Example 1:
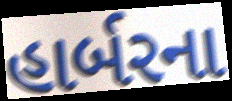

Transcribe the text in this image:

હાર્બરના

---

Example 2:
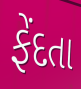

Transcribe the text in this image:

ફેંદતા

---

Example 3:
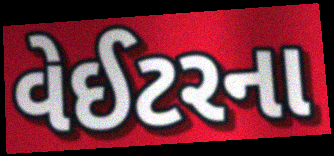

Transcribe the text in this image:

વેઈટરના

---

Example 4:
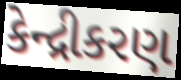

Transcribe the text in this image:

કેન્દ્રીકરણ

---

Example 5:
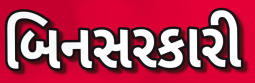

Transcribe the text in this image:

બિનસરકારી